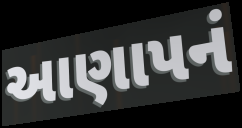
આણાપનં